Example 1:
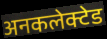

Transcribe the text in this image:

अनकलेक्टेड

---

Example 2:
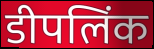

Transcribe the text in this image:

डीपलिंक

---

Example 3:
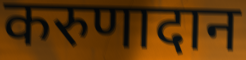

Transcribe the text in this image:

करुणादान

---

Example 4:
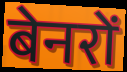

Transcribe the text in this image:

बेनरों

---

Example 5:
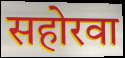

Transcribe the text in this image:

सहोरवा